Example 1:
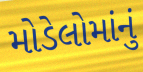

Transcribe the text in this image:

મોડેલોમાંનું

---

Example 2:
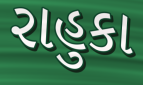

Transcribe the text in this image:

રાહુકા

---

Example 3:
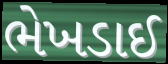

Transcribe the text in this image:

ભેખડાઈ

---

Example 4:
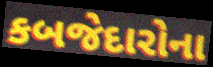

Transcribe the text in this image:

કબજેદારોના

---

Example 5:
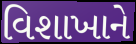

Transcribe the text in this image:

વિશાખાને